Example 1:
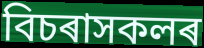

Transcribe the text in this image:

বিচৰাসকলৰ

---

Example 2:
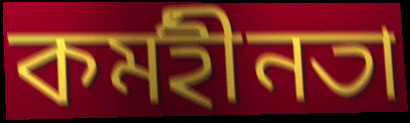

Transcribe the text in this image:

কৰ্মহীনতা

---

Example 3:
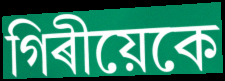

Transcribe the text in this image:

গিৰীয়েকে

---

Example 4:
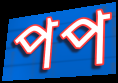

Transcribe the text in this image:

পপ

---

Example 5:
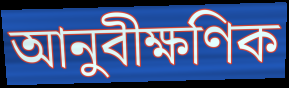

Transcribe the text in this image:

আনুবীক্ষণিক